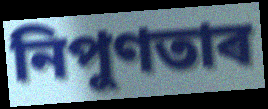
নিপুণতাৰ